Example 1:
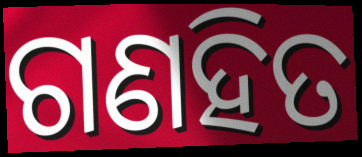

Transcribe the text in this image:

ଗଣହିତ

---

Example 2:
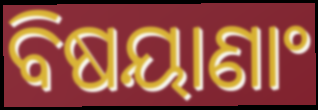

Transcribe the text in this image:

ବିଷୟାଣାଂ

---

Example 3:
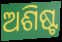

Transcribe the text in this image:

ଅଶିଷ୍ଟ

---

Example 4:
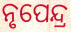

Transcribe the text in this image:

ନୃପେନ୍ଦ୍ର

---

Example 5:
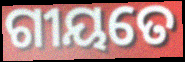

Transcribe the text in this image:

ଗୀୟତେ